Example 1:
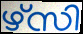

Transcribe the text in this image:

ഴ്സി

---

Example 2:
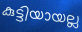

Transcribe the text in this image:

കുട്ടിയായല്ല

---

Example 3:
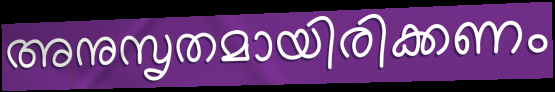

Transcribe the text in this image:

അനുസൃതമായിരിക്കണം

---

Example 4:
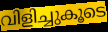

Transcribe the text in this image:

വിളിച്ചുകൂടെ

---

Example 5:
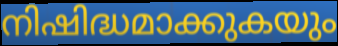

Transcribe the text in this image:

നിഷിദ്ധമാക്കുകയും